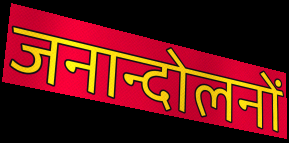
जनान्दोलनों